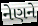
નેણને